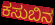
ಕಸುಬಿನ